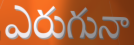
ఎరుగునా